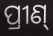
ପ୍ରୀଣ୍